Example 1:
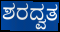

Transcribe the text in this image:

ಶರದ್ವತ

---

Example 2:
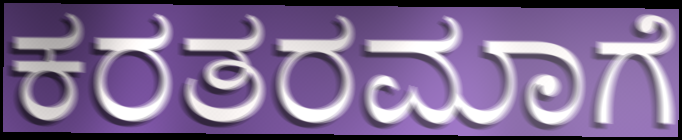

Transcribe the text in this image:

ಕರತರಮಾಗೆ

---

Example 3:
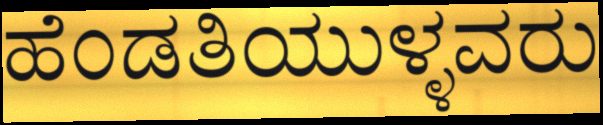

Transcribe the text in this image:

ಹೆಂಡತಿಯುಳ್ಳವರು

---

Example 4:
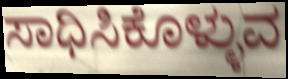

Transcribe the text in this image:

ಸಾಧಿಸಿಕೊಳ್ಳುವ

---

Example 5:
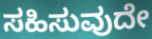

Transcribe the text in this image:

ಸಹಿಸುವುದೇ